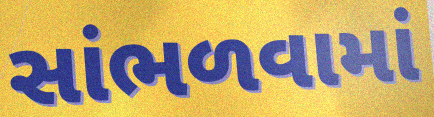
સાંભળવામાં